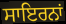
ਸਾਇਰਨਾਂ